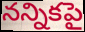
నన్నికపై